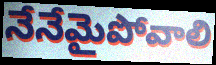
నేనేమైపోవాలి